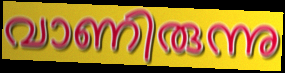
വാണിരുന്നു